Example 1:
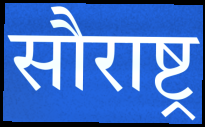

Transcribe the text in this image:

सौराष्ट्र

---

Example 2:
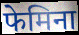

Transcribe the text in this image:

फेमिना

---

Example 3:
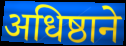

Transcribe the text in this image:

अधिष्ठाने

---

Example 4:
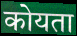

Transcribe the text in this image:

कोयता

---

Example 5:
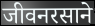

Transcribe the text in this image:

जीवनरसाने